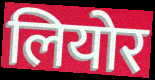
लियोर